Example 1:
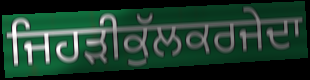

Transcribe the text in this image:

ਜਿਹੜੀਕੁੱਲਕਰਜੇਦਾ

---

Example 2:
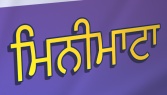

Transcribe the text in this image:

ਮਿਨੀਮਾਟਾ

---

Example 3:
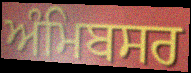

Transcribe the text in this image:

ਅੰਮਿਬਸਰ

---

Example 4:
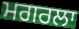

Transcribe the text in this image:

ਮਗਰਲਾ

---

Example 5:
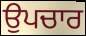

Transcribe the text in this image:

ਉਪਚਾਰ